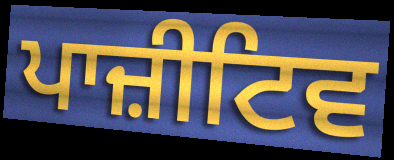
ਪਾਜ਼ੀਟਿਵ